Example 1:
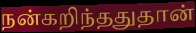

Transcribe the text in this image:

நன்கறிந்ததுதான்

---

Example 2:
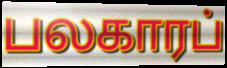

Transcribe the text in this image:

பலகாரப்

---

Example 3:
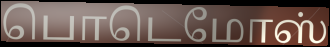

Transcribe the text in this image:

பொடெமோஸ்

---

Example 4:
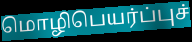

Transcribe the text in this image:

மொழிபெயர்ப்புச்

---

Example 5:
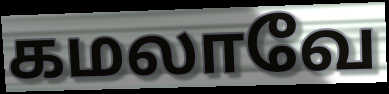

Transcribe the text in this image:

கமலாவே